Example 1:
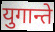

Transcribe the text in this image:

युगान्ते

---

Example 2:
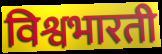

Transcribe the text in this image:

विश्वभारती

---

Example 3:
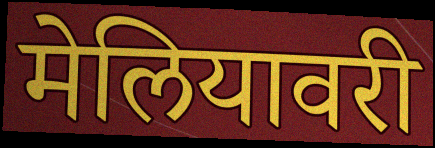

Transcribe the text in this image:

मेलियावरी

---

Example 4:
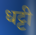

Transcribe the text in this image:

धट्टी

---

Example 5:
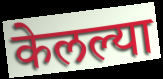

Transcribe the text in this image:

केलल्या